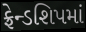
ફ્રેન્ડશિપમાં